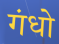
गंधो